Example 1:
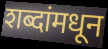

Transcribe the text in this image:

शब्दांमधून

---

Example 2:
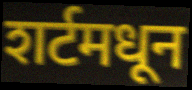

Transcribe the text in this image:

शर्टमधून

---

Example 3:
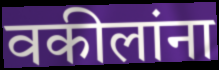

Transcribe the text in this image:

वकीलांना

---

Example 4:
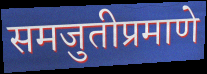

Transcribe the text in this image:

समजुतीप्रमाणे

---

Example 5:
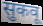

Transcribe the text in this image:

सुकवू